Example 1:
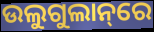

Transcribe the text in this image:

ଉଲୁଗୁଲାନ୍‌ରେ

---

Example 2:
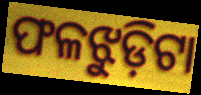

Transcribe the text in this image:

ଫଳଝୁଡ଼ିଟା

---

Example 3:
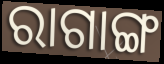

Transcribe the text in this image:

ରାଗାଙ୍ଗ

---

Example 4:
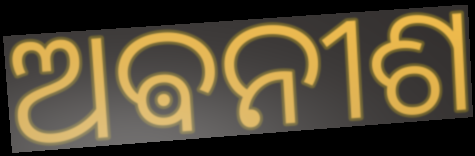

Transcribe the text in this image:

ଅଵନୀଶ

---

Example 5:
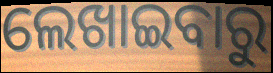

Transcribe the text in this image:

ଲେଖାଇବାରୁ